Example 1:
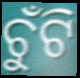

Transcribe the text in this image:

ଚୁଁଟି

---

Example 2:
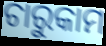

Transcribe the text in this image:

ଚାରୁକାମ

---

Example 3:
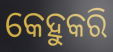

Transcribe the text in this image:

କେହୁକରି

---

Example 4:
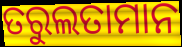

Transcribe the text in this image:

ତରୁଲତାମାନ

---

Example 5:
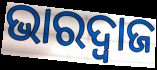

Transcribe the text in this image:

ଭାରଦ୍ୱାଜ